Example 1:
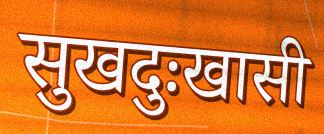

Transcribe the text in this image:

सुखदुःखासी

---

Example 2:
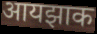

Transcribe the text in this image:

आयझाक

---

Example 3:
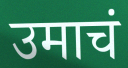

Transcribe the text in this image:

उमाचं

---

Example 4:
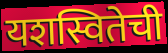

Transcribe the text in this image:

यशस्वितेची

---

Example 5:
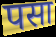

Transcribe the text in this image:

पसा